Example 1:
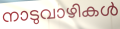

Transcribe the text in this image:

നാടുവാഴികൾ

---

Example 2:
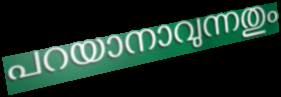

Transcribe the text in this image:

പറയാനാവുന്നതും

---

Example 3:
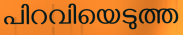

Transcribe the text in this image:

പിറവിയെടുത്ത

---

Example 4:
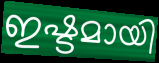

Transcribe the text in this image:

ഇഷ്ടമായി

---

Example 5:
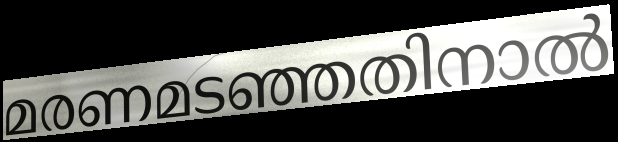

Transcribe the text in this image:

മരണമടഞ്ഞതിനാൽ